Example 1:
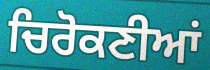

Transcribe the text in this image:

ਚਿਰੋਕਣੀਆਂ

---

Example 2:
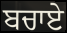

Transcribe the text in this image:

ਬਚਾਏ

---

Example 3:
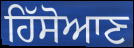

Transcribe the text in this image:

ਹਿੱਸੋਆਣ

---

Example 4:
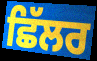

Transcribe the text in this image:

ਛਿੱਲਰ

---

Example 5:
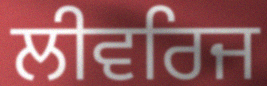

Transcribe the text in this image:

ਲੀਵਰਿਜ